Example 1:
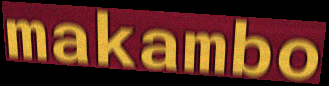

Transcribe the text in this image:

makambo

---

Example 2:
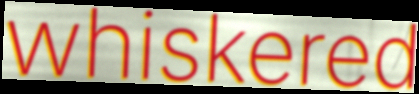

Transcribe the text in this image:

whiskered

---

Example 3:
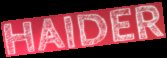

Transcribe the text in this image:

HAIDER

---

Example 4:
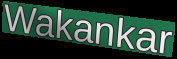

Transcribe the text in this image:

Wakankar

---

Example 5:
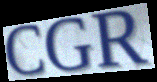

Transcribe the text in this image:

CGR